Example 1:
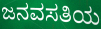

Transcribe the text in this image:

ಜನವಸತಿಯ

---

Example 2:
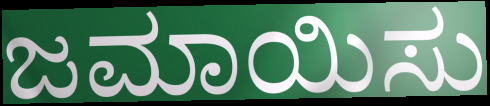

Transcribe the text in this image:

ಜಮಾಯಿಸು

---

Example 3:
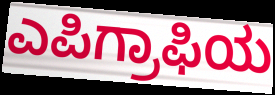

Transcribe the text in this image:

ಎಪಿಗ್ರಾಫಿಯ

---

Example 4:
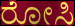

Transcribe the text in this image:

ರೋಸಿ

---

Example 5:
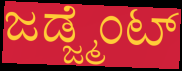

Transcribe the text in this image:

ಜಡ್ಜ್ಮೆಂಟ್